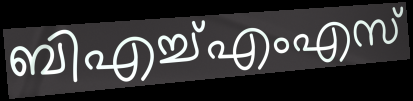
ബിഎച്ച്എംഎസ്